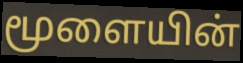
மூளையின்